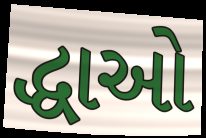
દ્ધાઓ